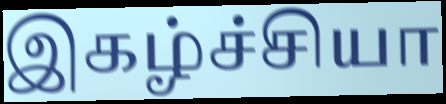
இகழ்ச்சியா